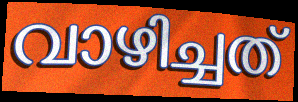
വാഴിച്ചത്